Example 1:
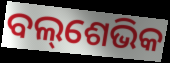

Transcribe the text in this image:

ବଲ୍‌ଶେଭିକ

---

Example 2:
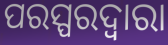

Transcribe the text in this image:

ପରସ୍ପରଦ୍ୱାରା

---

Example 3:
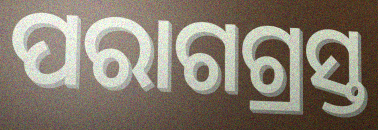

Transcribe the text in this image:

ପରାଗଗ୍ରସ୍ତ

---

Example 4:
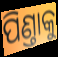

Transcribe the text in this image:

ପିଣ୍ତାକୁ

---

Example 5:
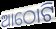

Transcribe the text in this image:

ଆଠୋଟି